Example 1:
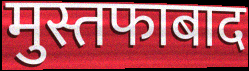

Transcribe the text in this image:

मुस्तफाबाद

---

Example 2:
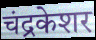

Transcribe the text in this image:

चंद्रकेशर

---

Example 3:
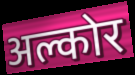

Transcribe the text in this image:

अल्कोर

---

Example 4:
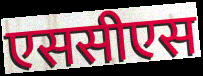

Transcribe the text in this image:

एससीएस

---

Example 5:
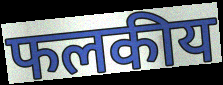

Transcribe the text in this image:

फलकीय